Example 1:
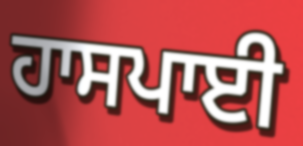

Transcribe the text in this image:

ਹਾਸਪਾਈ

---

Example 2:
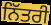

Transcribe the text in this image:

ਨਿੱਤਰੀ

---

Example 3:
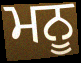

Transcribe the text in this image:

ਮਨੂ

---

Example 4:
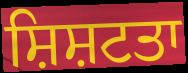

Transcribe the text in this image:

ਸ਼ਿਸ਼ਟਤਾ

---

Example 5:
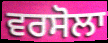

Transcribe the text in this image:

ਵਰਸੋਲਾ